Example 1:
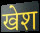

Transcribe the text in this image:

खेश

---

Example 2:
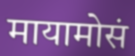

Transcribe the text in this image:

मायामोसं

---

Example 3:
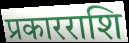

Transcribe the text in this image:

प्रकारराशि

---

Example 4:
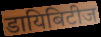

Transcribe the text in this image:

डायिबिटीज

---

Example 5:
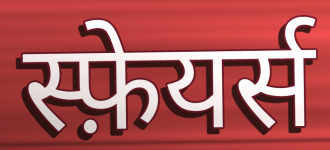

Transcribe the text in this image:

स्फ़ेयर्स